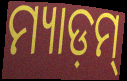
ମ୍ୟାଡ଼ମ୍